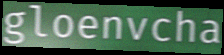
gloenvcha